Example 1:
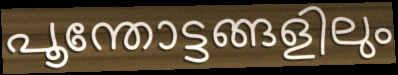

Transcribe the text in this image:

പൂന്തോട്ടങ്ങളിലും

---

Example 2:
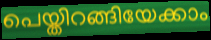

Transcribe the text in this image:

പെയ്തിറങ്ങിയേക്കാം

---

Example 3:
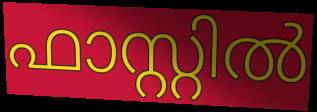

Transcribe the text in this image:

ഫാസ്റ്റിൽ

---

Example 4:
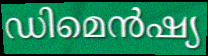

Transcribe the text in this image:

ഡിമെൻഷ്യ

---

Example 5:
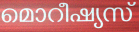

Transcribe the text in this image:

മൊറീഷ്യസ്